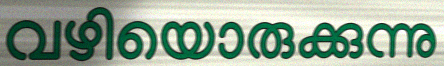
വഴിയൊരുക്കുന്നു